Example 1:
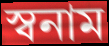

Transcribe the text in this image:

স্বনাম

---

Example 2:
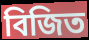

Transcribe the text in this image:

বিজিত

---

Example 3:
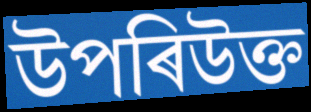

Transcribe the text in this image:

উপৰিউক্ত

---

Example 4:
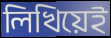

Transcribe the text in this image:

লিখিয়েই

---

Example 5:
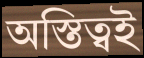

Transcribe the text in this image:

অস্তিত্বই